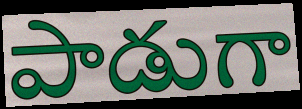
పాడుగా